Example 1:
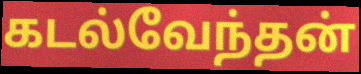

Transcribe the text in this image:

கடல்வேந்தன்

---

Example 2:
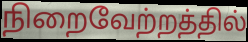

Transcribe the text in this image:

நிறைவேற்றத்தில்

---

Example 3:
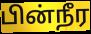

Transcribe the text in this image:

பின்நீர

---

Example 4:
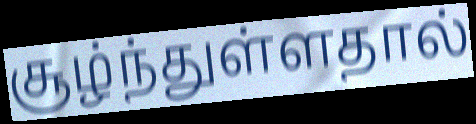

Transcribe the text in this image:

சூழ்ந்துள்ளதால்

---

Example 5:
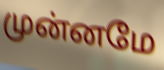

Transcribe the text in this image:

முன்னமே